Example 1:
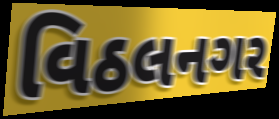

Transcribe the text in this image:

વિઠલનગર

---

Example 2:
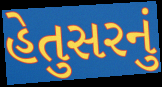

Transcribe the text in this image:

હેતુસરનું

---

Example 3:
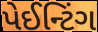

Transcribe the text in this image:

પેઈન્ટિંગ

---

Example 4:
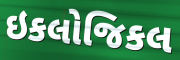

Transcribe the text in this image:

ઇકલોજિકલ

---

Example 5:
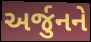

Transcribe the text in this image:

અર્જુનને